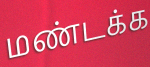
மண்டக்க